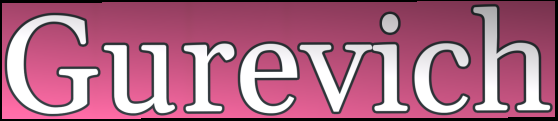
Gurevich